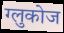
ग्लुकोज